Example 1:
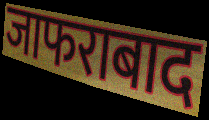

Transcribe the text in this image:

जाफराबाद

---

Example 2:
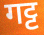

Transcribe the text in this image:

गट्ट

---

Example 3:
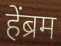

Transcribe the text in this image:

हेंब्रम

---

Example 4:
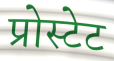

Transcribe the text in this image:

प्रोस्टेट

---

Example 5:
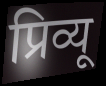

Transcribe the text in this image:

प्रिव्यू